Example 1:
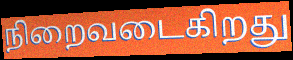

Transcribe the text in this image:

நிறைவடைகிறது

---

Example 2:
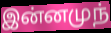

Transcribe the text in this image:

இன்னமுந்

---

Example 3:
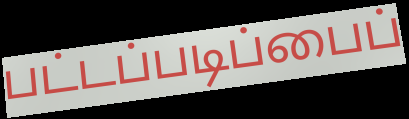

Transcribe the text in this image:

பட்டப்படிப்பைப்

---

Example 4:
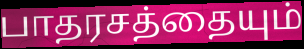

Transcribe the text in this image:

பாதரசத்தையும்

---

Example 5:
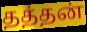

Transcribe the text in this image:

தத்தன்